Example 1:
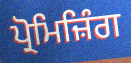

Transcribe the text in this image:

ਪ੍ਰੋਮਿਜ਼ਿੰਗ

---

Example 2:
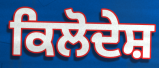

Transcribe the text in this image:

ਕਿਲੋਦੇਸ਼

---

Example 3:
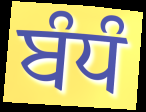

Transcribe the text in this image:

ਬੰਧੰ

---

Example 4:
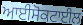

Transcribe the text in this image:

ਆਈਸੋਕਟਾਈਲ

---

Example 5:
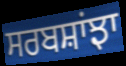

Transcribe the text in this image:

ਸਰਬਸ਼ਾਂਝਾ